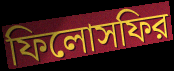
ফিলোসফির